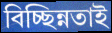
বিচ্ছিন্নতাই